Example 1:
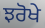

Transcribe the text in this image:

ਝਰੋਖੇ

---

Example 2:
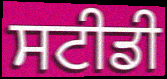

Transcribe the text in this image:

ਸਟੀਡੀ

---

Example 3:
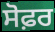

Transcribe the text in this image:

ਸੋਫ਼ਰ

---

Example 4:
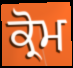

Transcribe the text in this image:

ਕ੍ਰੋਮ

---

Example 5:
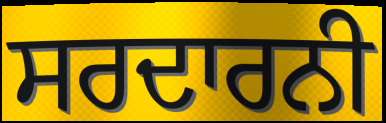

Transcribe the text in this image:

ਸਰਦਾਰਨੀ